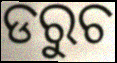
ଡରୁଚ